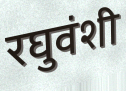
रघुवंशी